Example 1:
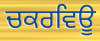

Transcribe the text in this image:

ਚਕਰਵਿਊ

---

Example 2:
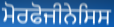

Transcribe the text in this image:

ਮੋਰਫੋਜੀਨੇਸਿਸ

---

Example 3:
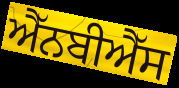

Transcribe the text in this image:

ਐੱਨਬੀਐੱਸ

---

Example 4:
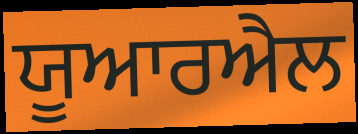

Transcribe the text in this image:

ਯੂਆਰਐਲ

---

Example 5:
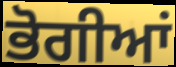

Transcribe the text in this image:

ਭੋਗੀਆਂ